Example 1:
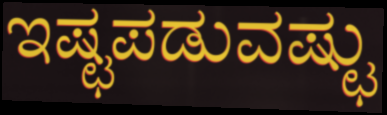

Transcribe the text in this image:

ಇಷ್ಟಪಡುವಷ್ಟು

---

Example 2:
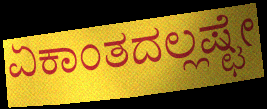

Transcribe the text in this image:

ಏಕಾಂತದಲ್ಲಷ್ಟೇ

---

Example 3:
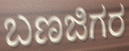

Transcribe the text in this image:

ಬಣಜಿಗರ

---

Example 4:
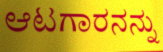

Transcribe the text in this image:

ಆಟಗಾರನನ್ನು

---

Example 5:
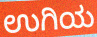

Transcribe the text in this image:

ಉಗಿಯ